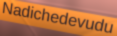
Nadichedevudu